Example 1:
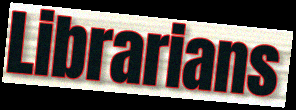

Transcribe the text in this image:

Librarians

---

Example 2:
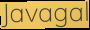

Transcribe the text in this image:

Javagal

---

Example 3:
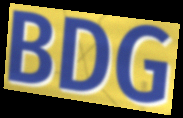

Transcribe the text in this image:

BDG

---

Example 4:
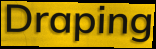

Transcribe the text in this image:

Draping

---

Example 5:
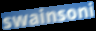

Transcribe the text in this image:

swainsoni